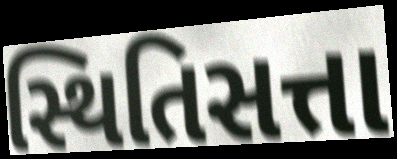
સ્થિતિસત્તા